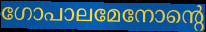
ഗോപാലമേനോന്റെ